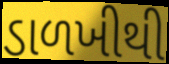
ડાળખીથી